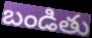
బండితు